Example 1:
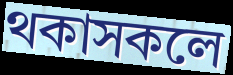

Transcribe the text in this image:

থকাসকলে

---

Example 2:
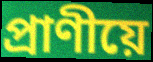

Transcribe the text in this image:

প্ৰাণীয়ে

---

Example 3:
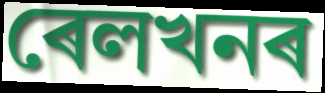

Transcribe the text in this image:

ৰেলখনৰ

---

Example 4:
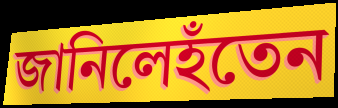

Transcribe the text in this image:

জানিলেহঁতেন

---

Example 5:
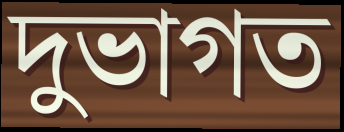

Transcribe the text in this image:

দুভাগত